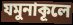
যমুনাকূলে